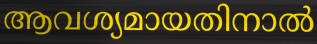
ആവശ്യമായതിനാൽ